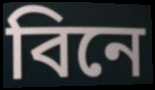
বিনে